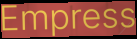
Empress